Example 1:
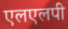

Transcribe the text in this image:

एलएलपी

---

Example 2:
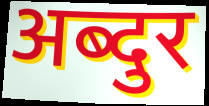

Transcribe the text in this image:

अब्दुर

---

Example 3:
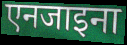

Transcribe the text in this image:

एनजाइना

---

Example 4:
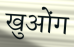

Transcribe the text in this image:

खुओंग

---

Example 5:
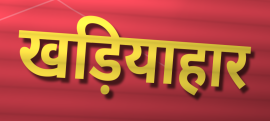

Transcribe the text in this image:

खड़ियाहार